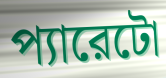
প্যারেটো